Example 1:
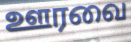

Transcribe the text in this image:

ஊரவை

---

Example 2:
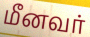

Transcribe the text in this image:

மீனவர்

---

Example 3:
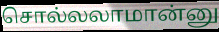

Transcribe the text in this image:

சொல்லலாமான்னு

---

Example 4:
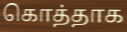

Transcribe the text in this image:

கொத்தாக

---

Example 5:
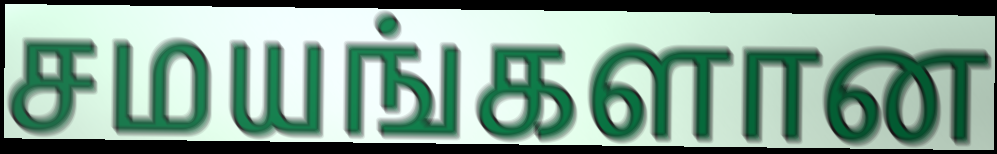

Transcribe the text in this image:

சமயங்களான